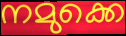
നമുക്കെ